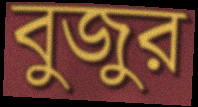
বুজুর